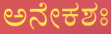
ಅನೇಕಶಃ